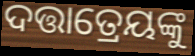
ଦତ୍ତାତ୍ରେୟଙ୍କୁ